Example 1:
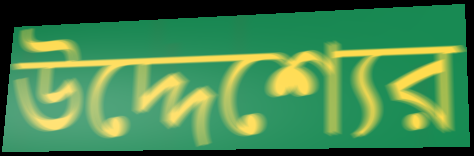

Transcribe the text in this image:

উদ্দেশ্যের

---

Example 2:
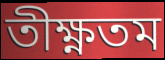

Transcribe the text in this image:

তীক্ষ্ণতম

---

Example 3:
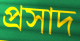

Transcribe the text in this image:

প্রসাদ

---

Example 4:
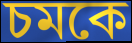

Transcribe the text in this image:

চমকে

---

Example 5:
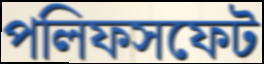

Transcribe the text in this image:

পলিফসফেট